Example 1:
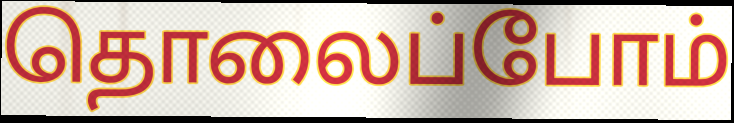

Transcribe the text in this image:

தொலைப்போம்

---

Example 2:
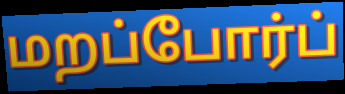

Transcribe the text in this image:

மறப்போர்ப்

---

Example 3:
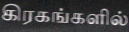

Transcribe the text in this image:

கிரகங்களில்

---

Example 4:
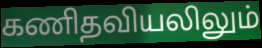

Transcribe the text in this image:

கணிதவியலிலும்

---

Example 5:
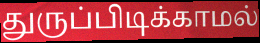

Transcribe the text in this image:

துருப்பிடிக்காமல்